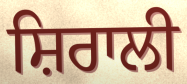
ਸ਼ਿਰਾਲੀ